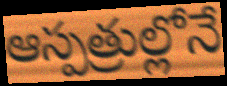
ఆస్పత్రుల్లోనే